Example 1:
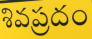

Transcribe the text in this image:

శివప్రదం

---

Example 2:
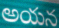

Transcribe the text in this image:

అయన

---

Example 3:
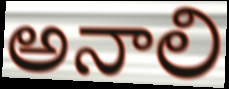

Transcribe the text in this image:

అనాలి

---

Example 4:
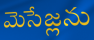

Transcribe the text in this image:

మెసేజ్లను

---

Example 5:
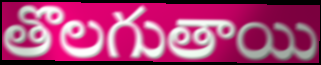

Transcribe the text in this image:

తొలగుతాయి